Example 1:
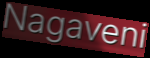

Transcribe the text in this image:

Nagaveni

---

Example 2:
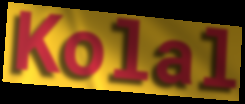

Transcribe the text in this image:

Kolal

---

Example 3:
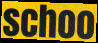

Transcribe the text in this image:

schoo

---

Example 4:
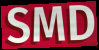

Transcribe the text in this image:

SMD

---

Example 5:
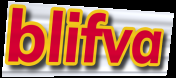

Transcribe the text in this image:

blifva